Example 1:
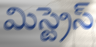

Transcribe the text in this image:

మిస్ట్రెస్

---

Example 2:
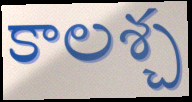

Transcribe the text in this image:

కాలశ్చ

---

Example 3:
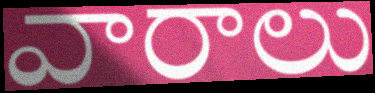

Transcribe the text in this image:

వారాలు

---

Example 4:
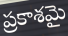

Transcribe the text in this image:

ప్రకాశమై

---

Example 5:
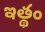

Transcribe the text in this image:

ఇత్థం